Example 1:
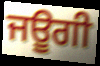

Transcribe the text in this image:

ਜਊਗੀ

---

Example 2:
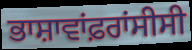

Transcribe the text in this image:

ਭਾਸ਼ਾਵਾਂਫ਼ਰਾਂਸੀਸੀ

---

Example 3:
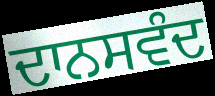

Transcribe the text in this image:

ਦਾਨਸਵੰਦ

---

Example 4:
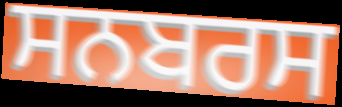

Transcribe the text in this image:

ਸਨਬਰਸ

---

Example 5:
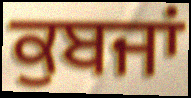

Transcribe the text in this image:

ਕੁਬਜਾਂ